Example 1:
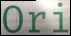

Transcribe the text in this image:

Ori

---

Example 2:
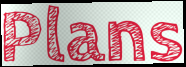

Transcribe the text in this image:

Plans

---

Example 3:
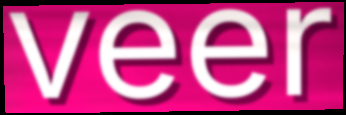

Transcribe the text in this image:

veer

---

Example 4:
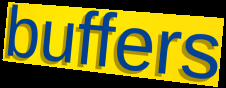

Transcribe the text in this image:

buffers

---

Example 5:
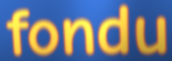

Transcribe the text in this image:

fondu